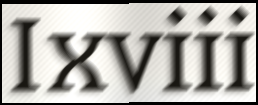
Ixviii